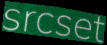
srcset